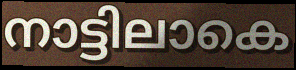
നാട്ടിലാകെ